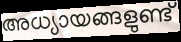
അധ്യായങ്ങളുണ്ട്